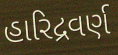
હારિદ્રવર્ણ